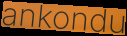
ankondu